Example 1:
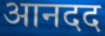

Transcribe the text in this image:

आनदद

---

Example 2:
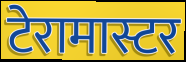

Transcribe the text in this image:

टेरामास्टर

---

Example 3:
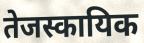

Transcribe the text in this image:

तेजस्कायिक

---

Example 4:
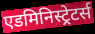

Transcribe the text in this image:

एडमिनिस्ट्रेटर्स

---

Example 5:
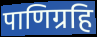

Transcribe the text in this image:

पाणिग्रहि